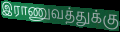
இராணுவத்துக்கு